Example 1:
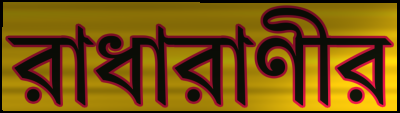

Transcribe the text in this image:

রাধারাণীর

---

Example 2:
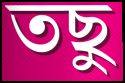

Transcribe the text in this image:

তছু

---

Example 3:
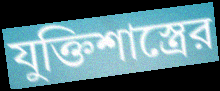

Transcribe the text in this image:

যুক্তিশাস্ত্রের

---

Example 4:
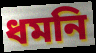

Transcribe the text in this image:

ধমনি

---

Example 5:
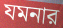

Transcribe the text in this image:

যমনার